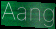
Aang